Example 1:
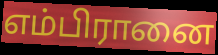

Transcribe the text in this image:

எம்பிரானை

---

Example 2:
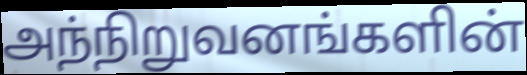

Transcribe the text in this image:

அந்நிறுவனங்களின்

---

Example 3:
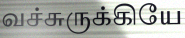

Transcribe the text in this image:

வச்சுருக்கியே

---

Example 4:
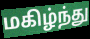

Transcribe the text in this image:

மகிழ்ந்து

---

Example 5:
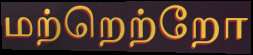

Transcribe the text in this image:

மற்றெற்றோ